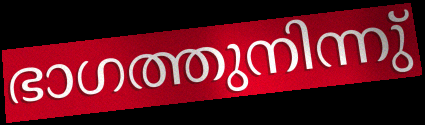
ഭാഗത്തുനിന്നു്